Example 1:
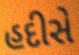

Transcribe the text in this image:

હદીસે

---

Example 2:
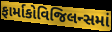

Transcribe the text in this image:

ફાર્માકોવિજિલન્સમાં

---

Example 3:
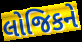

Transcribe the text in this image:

લોજિકને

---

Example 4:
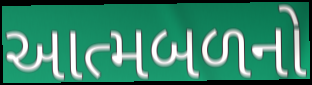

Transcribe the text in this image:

આત્મબળનો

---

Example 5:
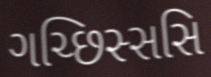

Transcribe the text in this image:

ગચ્છિસ્સસિ